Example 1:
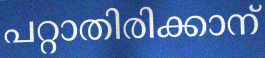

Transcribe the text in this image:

പറ്റാതിരിക്കാന്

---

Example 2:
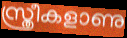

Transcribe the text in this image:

സ്ത്രീകളാണു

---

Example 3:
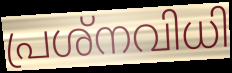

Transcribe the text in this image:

പ്രശ്നവിധി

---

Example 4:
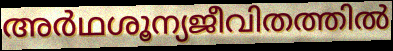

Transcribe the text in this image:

അർഥശൂന്യജീവിതത്തിൽ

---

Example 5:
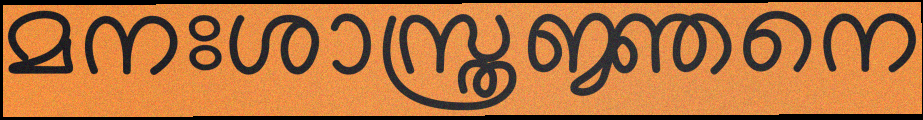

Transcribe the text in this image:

മനഃശാസ്ത്രജ്ഞനെ